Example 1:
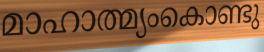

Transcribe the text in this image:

മാഹാത്മ്യംകൊണ്ടു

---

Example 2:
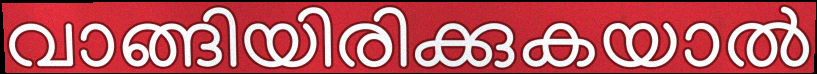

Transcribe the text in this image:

വാങ്ങിയിരിക്കുകയാൽ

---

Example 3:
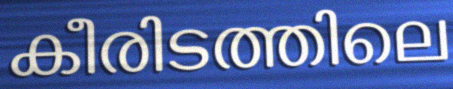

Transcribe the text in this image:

കീരിടത്തിലെ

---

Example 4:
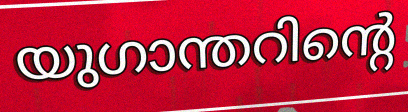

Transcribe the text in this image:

യുഗാന്തറിന്റെ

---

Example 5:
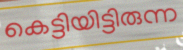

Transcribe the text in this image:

കെട്ടിയിട്ടിരുന്ന